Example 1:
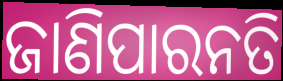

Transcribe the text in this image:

ଜାଣିପାରନତି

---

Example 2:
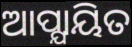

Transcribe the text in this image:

ଆପ୍ଯାୟିତ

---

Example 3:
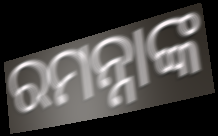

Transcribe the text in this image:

ରମନ୍ନାଙ୍କ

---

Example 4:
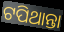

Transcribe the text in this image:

ଟପିଥାନ୍ତା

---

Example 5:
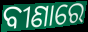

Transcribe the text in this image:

ବୀଣାରେ